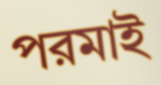
পরমাই